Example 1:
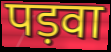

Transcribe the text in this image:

पड़वा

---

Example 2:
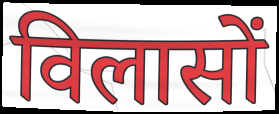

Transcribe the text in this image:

विलासों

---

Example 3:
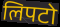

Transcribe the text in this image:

लिपटो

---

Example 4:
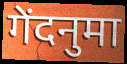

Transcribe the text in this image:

गेंदनुमा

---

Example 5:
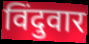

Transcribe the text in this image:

विंदुवार